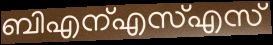
ബിഎന്എസ്എസ്